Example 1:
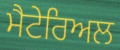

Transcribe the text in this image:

ਮੈਟੇਰਿਅਲ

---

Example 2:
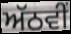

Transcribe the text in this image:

ਅੱਠਵੀੰ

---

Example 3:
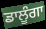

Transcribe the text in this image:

ਡਾਲੂੰਗਾ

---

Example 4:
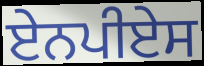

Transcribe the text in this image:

ਏਨਪੀਏਸ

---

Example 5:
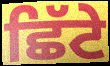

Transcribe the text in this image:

ਛਿੱਟੇ